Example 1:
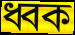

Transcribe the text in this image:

ধ্বক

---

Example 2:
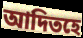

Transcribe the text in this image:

আদিতহে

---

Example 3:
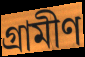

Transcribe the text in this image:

গ্ৰামীণ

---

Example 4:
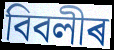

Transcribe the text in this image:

বিবলীৰ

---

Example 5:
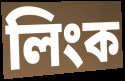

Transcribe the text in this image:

লিংক